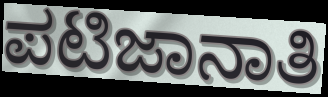
ಪಟಿಜಾನಾತಿ